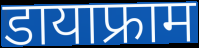
डायाफ्राम